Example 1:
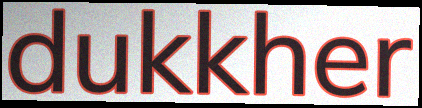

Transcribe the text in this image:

dukkher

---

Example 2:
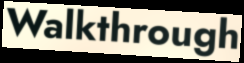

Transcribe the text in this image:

Walkthrough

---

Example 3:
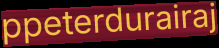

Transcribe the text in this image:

ppeterdurairaj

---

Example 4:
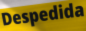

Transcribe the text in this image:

Despedida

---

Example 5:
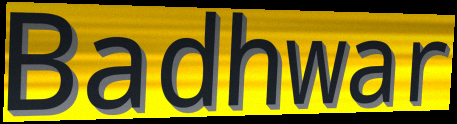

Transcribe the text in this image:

Badhwar